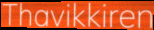
Thavikkiren